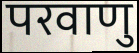
परवाणु